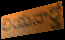
లియనార్డో